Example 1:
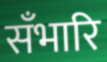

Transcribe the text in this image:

सँभारि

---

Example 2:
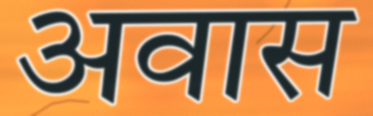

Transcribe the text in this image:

अवास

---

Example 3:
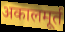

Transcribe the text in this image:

अकालमूर्त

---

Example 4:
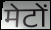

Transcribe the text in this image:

मेटों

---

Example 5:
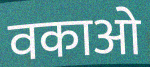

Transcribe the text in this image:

वकाओ